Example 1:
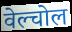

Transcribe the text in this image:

वेल्चोल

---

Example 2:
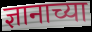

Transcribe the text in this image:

ज्ञानाच्या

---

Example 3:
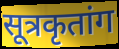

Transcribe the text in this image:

सूत्रकृतांग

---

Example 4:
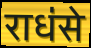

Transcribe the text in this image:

राध॑से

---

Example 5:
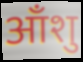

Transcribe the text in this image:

आँशु